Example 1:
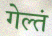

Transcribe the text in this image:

गेल्तं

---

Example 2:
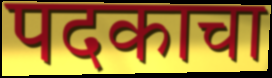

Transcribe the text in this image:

पदकाचा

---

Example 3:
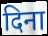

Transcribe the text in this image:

दिना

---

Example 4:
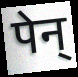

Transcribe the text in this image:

पेन्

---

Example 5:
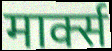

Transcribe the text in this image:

मार्क्स